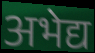
अभेद्य